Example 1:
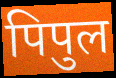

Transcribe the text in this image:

पिपुल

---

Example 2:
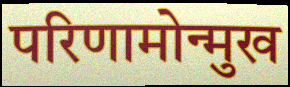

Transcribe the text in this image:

परिणामोन्मुख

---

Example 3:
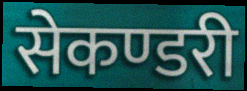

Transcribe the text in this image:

सेकण्‍डरी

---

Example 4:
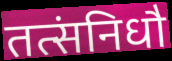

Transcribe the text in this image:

तत्संनिधौ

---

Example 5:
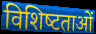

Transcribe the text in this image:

विशिष्‍टताओं